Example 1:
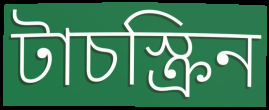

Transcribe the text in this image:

টাচস্ক্রিন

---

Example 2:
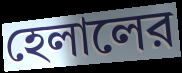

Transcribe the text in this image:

হেলালের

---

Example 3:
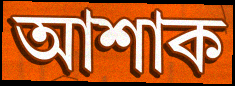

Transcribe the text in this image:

আশাক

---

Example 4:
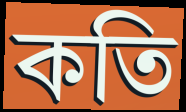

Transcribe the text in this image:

কতি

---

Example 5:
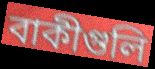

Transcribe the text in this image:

বাকীগুলি